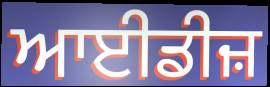
ਆਈਡੀਜ਼